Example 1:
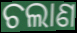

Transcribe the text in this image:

ଚଲାଣ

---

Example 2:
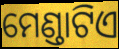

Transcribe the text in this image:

ମେଣ୍ଡାଟିଏ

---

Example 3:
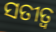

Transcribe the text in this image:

ସତୀତ୍ଵ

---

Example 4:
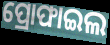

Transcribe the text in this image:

ପ୍ରୋଫାଇଲ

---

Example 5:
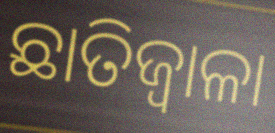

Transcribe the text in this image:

ଛାତିଜ୍ୱାଳା